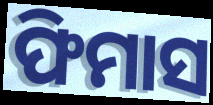
ଫିମାସ